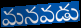
మనవడు